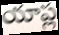
యాప్ల